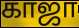
காஜா